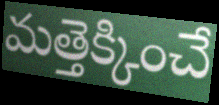
మత్తెక్కించే